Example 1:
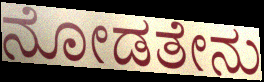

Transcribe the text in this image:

ನೋಡತೇನು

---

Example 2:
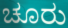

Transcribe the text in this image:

ಚೂರು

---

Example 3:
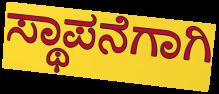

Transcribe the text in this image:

ಸ್ಥಾಪನೆಗಾಗಿ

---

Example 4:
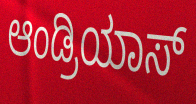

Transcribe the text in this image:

ಆಂಡ್ರಿಯಾಸ್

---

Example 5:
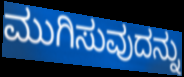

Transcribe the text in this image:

ಮುಗಿಸುವುದನ್ನು